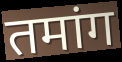
तमांग